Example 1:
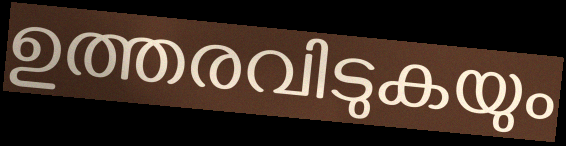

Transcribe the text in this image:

ഉത്തരവിടുകയും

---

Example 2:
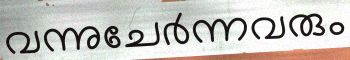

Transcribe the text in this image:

വന്നുചേർന്നവരും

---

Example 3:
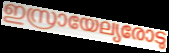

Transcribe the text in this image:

ഇസ്രായേല്യരോടു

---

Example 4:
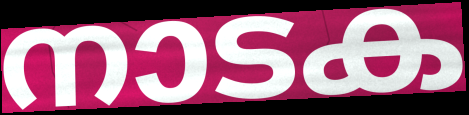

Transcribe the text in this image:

നാടക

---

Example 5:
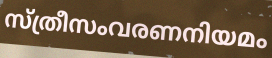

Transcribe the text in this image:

സ്ത്രീസംവരണനിയമം